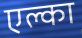
एल्का